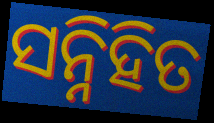
ସନ୍ନିହିତ